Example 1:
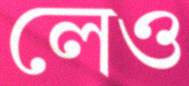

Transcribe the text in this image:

লেও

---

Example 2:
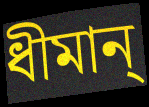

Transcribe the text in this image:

ধীমান্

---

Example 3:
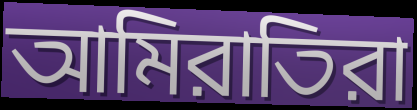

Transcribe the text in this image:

আমিরাতিরা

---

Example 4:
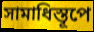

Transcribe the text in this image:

সামাধিস্তূপে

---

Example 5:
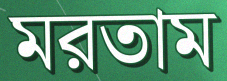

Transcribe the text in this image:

মরতাম